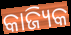
କାଜ୍ୟିକ